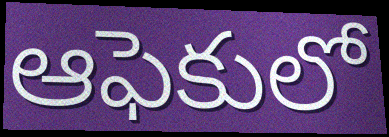
ఆఫెకులో